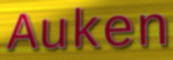
Auken